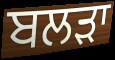
ਬਲੜਾ